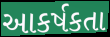
આકર્ષકતા